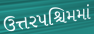
ઉત્તરપશ્ચિમમાં